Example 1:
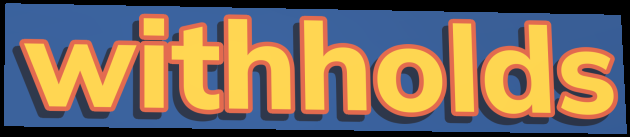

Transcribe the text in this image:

withholds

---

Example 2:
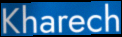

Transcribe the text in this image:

Kharech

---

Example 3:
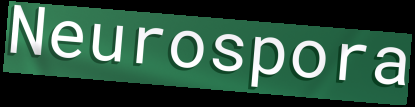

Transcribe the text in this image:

Neurospora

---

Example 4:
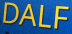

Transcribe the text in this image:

DALF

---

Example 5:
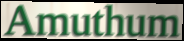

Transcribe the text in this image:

Amuthum